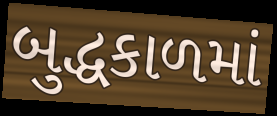
બુદ્ધકાળમાં